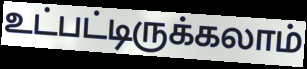
உட்பட்டிருக்கலாம்